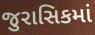
જુરાસિકમાં